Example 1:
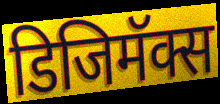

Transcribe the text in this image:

डिजिमॅक्स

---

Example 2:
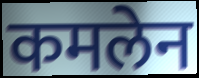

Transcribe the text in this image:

कमलेन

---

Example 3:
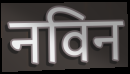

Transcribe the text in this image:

नविन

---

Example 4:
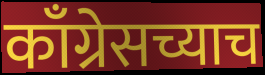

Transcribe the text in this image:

काँग्रेसच्याच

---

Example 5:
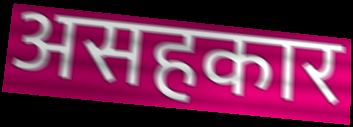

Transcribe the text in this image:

असहकार